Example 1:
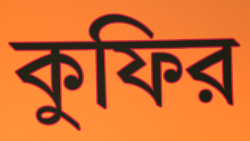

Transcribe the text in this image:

কুফির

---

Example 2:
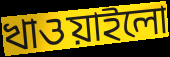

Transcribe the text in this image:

খাওয়াইলো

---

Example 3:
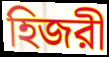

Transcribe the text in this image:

হিজরী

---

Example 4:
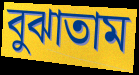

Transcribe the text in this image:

বুঝাতাম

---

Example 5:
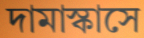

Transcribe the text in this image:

দামাস্কাসে